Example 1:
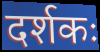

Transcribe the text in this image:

दर्शकः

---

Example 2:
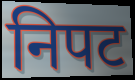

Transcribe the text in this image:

निपट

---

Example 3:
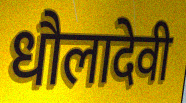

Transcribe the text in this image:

धौलादेवी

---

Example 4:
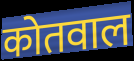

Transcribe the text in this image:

कोतवाल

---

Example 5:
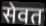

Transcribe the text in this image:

सेवत